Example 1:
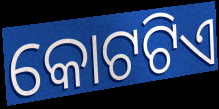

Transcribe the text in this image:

କୋଟଟିଏ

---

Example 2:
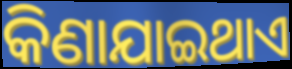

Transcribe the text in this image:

କିଣାଯାଇଥାଏ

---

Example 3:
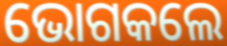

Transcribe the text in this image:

ଭୋଗକଲେ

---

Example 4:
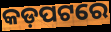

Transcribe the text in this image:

କଡ଼ପଟରେ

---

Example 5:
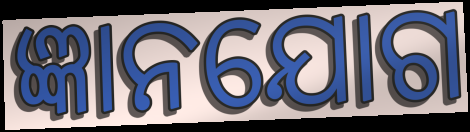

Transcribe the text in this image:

ଜ୍ଞାନଯୋଗ